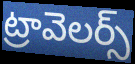
ట్రావెలర్స్